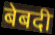
बेबदी